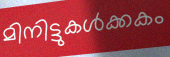
മിനിട്ടുകൾക്കകം